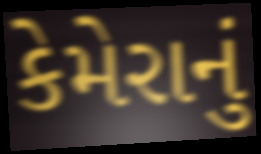
કેમેરાનું